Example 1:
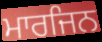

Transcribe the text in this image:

ਮਾਰਜਿਨ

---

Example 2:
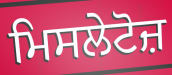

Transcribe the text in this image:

ਮਿਸਲੇਟੋਜ਼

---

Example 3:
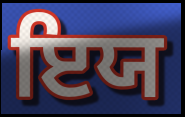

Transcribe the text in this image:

ਇਯ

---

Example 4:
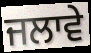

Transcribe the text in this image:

ਜਲਾਵੇ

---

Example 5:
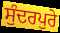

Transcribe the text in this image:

ਸੁੰਦਰਪੁਰੇ